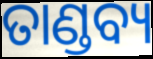
ତାଣ୍ଡବ୍ୟ